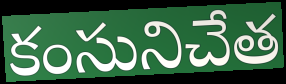
కంసునిచేత